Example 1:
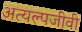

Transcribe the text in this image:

अत्यल्पजीवी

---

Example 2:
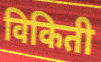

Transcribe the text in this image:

विकिती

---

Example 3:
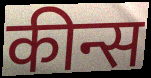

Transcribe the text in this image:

कीन्स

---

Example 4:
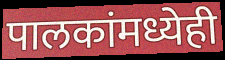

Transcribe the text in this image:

पालकांमध्येही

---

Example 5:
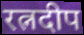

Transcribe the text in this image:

रत्नदीप